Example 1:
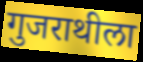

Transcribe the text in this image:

गुजराथीला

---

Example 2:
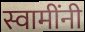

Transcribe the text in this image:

स्वामींनी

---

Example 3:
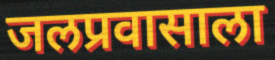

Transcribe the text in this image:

जलप्रवासाला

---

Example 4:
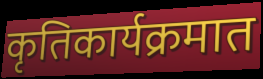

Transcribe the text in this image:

कृतिकार्यक्रमात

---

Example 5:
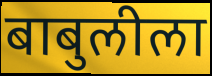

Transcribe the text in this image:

बाबुलीला